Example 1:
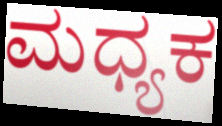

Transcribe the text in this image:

ಮಧ್ಯಕ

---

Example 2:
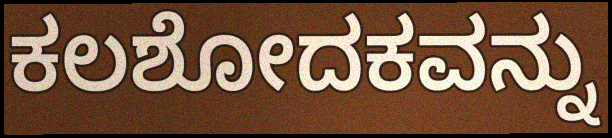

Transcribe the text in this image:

ಕಲಶೋದಕವನ್ನು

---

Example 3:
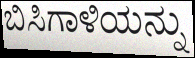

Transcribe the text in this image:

ಬಿಸಿಗಾಳಿಯನ್ನು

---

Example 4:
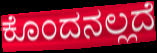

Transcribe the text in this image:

ಕೊಂದನಲ್ಲದೆ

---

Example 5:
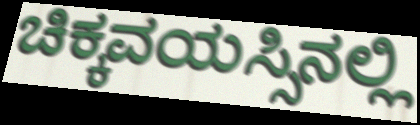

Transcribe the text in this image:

ಚಿಕ್ಕವಯಸ್ಸಿನಲ್ಲಿ